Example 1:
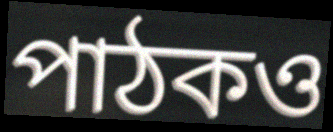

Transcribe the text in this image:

পাঠকও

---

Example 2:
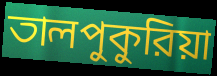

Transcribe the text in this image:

তালপুকুরিয়া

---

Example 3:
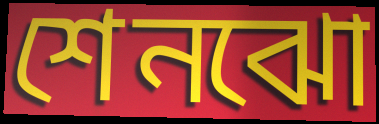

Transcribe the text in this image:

শেনঝো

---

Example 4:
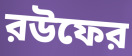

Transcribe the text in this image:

রউফের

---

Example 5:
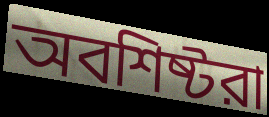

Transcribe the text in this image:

অবশিষ্টরা